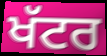
ਖੱਟਰ